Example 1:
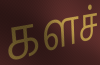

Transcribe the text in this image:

களச்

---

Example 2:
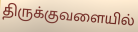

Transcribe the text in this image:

திருக்குவளையில்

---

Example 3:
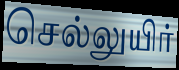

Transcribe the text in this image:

செல்லுயிர்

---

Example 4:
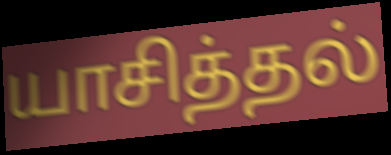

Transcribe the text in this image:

யாசித்தல்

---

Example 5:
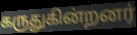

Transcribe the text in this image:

கருதுகின்றனர்